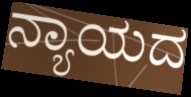
ನ್ಯಾಯದ